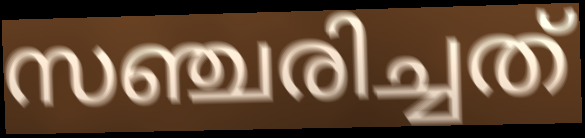
സഞ്ചരിച്ചത്